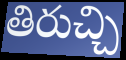
తిరుచ్చి